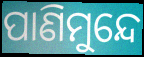
ପାଣିମୁନ୍ଦେ